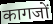
कागजों